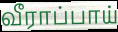
வீராப்பாய்